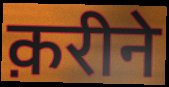
क़रीने